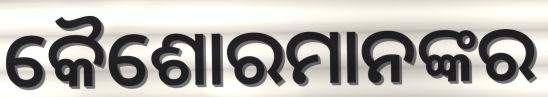
କୈଶୋରମାନଙ୍କର